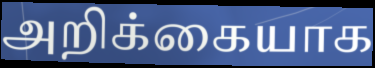
அறிக்கையாக